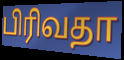
பிரிவதா